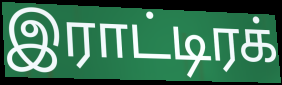
இராட்டிரக்